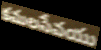
కమలసేవయు